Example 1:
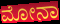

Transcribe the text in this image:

ಮೋನಾ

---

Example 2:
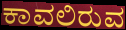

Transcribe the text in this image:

ಕಾವಲಿರುವ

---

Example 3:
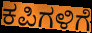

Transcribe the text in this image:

ಕಪಿಗಳಿಗೆ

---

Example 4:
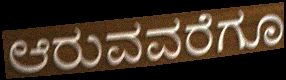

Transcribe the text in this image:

ಆರುವವರೆಗೂ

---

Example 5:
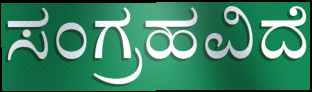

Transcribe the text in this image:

ಸಂಗ್ರಹವಿದೆ